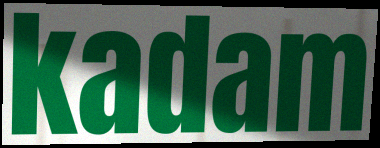
kadam